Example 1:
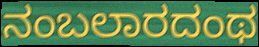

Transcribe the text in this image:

ನಂಬಲಾರದಂಥ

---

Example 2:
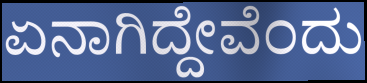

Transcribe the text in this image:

ಏನಾಗಿದ್ದೇವೆಂದು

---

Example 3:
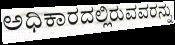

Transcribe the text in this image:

ಅಧಿಕಾರದಲ್ಲಿರುವವರನ್ನು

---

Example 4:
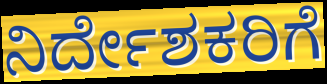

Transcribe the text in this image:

ನಿರ್ದೇಶಕರಿಗೆ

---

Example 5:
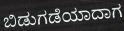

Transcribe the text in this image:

ಬಿಡುಗಡೆಯಾದಾಗ